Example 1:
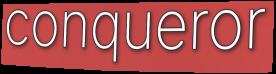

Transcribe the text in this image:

conqueror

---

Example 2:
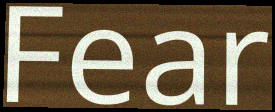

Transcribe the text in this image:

Fear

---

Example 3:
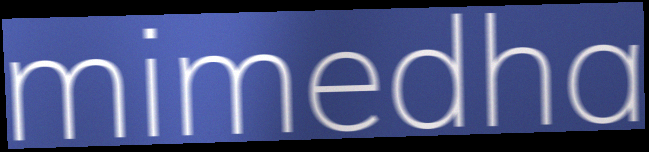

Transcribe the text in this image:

mimedha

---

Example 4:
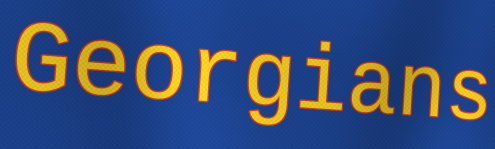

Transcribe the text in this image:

Georgians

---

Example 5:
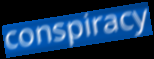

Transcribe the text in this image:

conspiracy